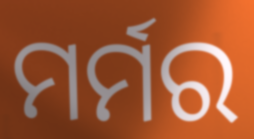
ମର୍ମର